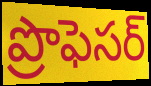
ప్రొఫెసర్